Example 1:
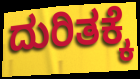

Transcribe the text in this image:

ದುರಿತಕ್ಕೆ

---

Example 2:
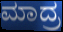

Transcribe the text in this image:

ಮಾದ್ರ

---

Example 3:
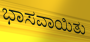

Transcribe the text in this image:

ಭಾಸವಾಯಿತು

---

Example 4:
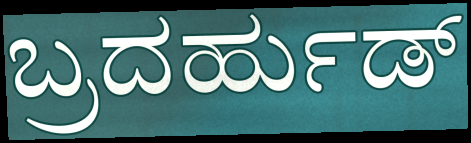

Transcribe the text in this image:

ಬ್ರದರ್ಹುಡ್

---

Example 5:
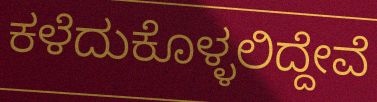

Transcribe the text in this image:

ಕಳೆದುಕೊಳ್ಳಲಿದ್ದೇವೆ